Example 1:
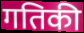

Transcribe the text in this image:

गतिकी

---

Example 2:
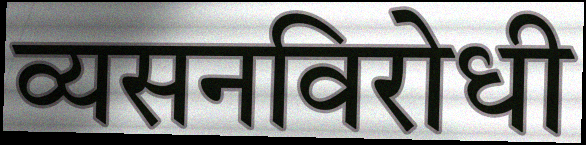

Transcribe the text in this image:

व्यसनविरोधी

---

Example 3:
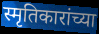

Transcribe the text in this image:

स्मृतिकारांच्या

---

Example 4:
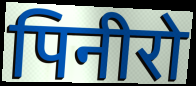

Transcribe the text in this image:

पिनीरो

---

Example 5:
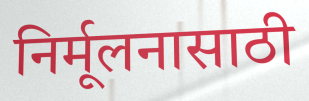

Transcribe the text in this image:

निर्मूलनासाठी